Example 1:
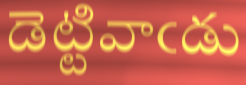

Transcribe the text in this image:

డెట్టివాఁడు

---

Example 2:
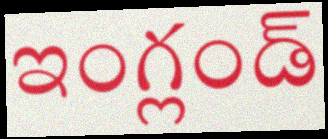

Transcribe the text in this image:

ఇంగ్లండ్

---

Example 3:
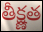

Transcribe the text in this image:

తీక్ష్ణత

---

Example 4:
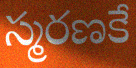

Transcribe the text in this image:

స్మరణకే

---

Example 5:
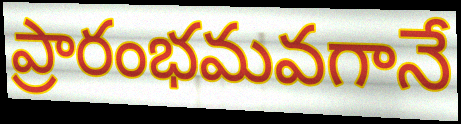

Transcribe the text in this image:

ప్రారంభమవగానే